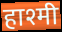
हाश्मी